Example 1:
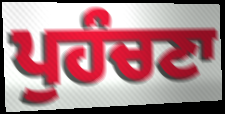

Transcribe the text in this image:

ਪੁਹੰਚਣਾ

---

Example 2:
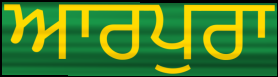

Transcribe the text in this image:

ਆਰਪੁਰਾ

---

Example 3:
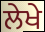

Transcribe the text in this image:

ਲੇਖੇ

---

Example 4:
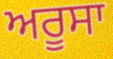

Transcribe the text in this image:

ਅਰੂਸਾ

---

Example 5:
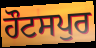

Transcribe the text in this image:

ਹੌਟਸਪੁਰ